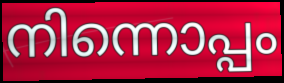
നിന്നൊപ്പം